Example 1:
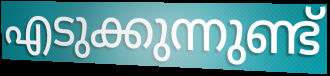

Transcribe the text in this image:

എടുക്കുന്നുണ്ട്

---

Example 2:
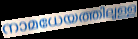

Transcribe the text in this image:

നാമധേയത്തിലുള്ള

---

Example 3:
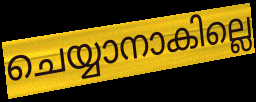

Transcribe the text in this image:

ചെയ്യാനാകില്ലെ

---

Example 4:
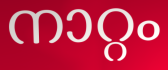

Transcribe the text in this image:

നാറ്റം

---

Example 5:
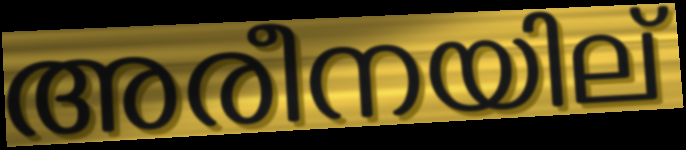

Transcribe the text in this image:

അരീനയില്